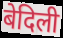
बेदिली